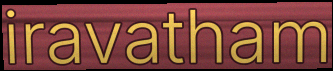
iravatham